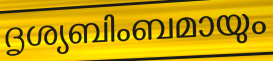
ദൃശ്യബിംബമായും